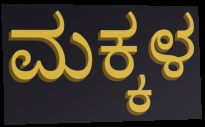
ಮಕ್ಕಳ